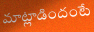
మాట్లాడిందంటే